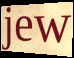
jew